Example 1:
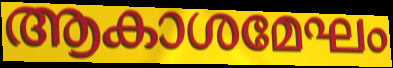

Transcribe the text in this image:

ആകാശമേഘം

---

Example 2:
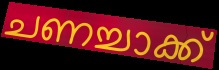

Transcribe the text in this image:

ചണച്ചാക്ക്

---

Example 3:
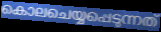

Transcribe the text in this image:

കൊലചെയ്യപ്പെടുന്നത്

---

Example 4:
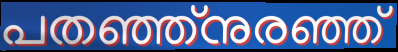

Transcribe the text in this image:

പതഞ്ഞ്നുരഞ്ഞ്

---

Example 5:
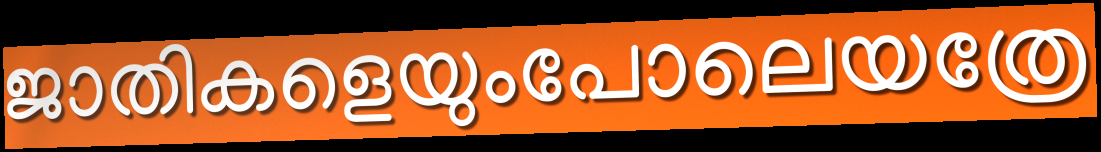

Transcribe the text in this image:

ജാതികളെയുംപോലെയത്രേ